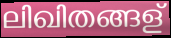
ലിഖിതങ്ങള്